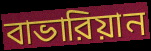
বাভারিয়ান